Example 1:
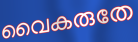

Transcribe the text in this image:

വൈകരുതേ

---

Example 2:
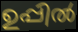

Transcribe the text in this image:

ഉപ്പിൽ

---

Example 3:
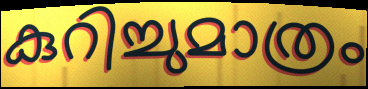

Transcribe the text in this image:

കുറിച്ചുമാത്രം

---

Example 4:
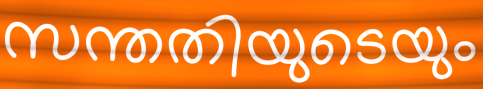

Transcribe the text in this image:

സന്തതിയുടെയും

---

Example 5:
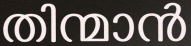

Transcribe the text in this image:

തിന്മാൻ